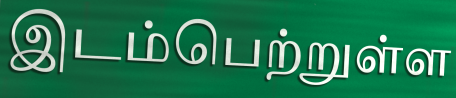
இடம்பெற்றுள்ள